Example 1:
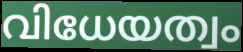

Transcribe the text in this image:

വിധേയത്വം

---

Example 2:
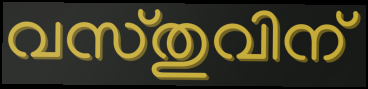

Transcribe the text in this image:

വസ്തുവിന്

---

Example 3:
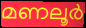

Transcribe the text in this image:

മണലൂർ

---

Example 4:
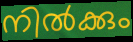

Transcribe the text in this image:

നിൽക്കും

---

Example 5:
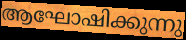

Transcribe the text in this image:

ആഘോഷിക്കുന്നു